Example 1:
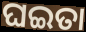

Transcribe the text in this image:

ଘଇତା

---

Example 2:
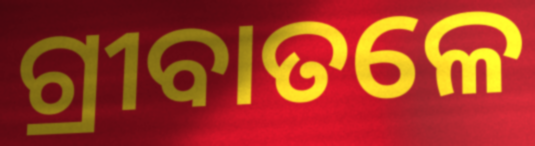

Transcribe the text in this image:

ଗ୍ରୀବାତଳେ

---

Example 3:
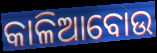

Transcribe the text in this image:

କାଳିଆବୋଉ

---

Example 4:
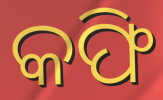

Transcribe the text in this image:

କଫି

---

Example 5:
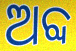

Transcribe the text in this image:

ଅବ୍ଦ